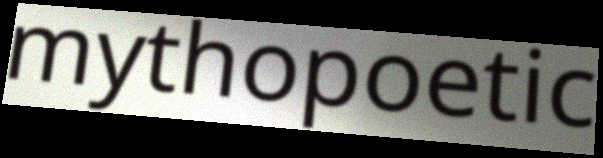
mythopoetic